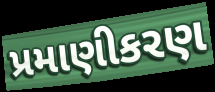
પ્રમાણીકરણ